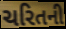
ચરિતની